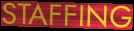
STAFFING